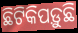
ଛିଟିକିପଡ଼ୁଛି